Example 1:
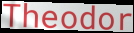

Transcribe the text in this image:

Theodor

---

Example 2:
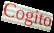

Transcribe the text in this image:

Cogito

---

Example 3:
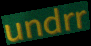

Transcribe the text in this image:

undrr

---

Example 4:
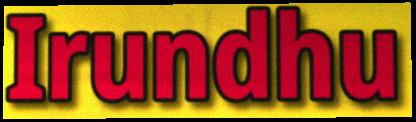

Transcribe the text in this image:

Irundhu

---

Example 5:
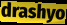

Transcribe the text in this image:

drashyo